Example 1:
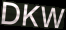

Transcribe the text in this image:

DKW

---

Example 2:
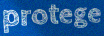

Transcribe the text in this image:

protege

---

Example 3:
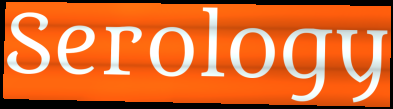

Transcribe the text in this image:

Serology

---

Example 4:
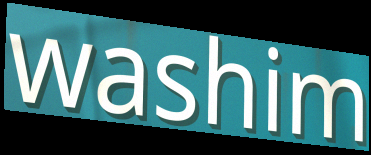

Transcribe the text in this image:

washim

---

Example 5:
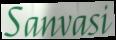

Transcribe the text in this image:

Sanvasi